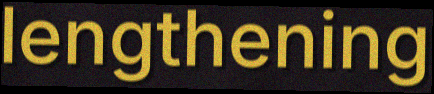
lengthening